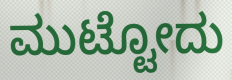
ಮುಟ್ಟೋದು